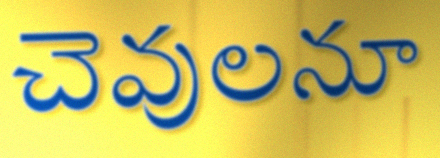
చెవులనూ